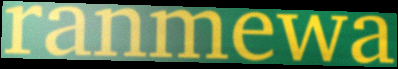
ranmewa